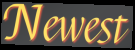
Newest